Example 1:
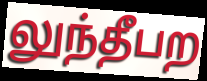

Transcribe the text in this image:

லுந்தீபற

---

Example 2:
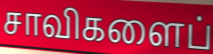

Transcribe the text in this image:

சாவிகளைப்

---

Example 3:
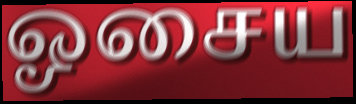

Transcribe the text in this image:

ஓசைய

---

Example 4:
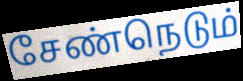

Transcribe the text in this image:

சேண்நெடும்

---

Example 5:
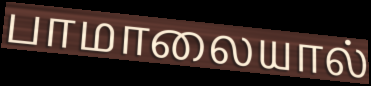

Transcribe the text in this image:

பாமாலையால்